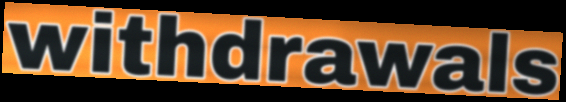
withdrawals